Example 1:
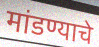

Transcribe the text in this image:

मांडण्याचे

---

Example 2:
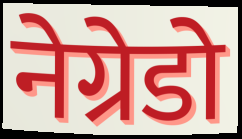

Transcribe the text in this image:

नेग्रेडो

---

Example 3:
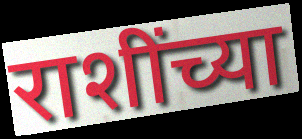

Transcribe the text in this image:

राशींच्या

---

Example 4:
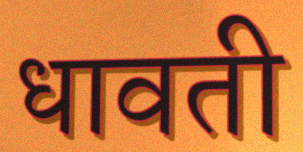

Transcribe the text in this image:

धावती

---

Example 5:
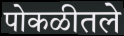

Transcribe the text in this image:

पोकळीतले